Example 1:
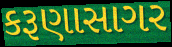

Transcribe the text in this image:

કરૂણાસાગર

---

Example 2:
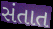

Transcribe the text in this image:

સંતાત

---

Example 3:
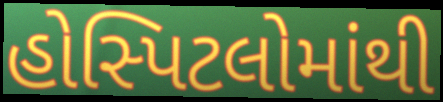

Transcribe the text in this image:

હોસ્પિટલોમાંથી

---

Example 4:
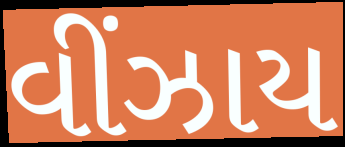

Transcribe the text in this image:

વીંઝાય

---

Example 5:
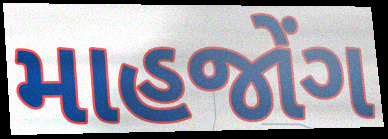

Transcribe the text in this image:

માહજોંગ